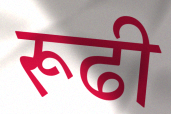
रूढी